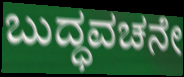
ಬುದ್ಧವಚನೇ